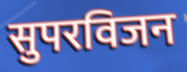
सुपरविजन